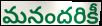
మనందరికీ